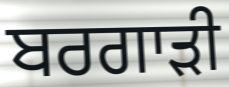
ਬਰਗਾੜੀ